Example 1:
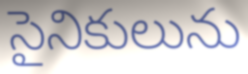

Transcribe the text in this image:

సైనికులును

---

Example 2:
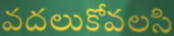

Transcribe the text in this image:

వదలుకోవలసి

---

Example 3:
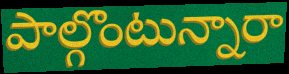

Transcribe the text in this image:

పాల్గొంటున్నారా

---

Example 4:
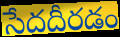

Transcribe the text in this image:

సేదదీరడం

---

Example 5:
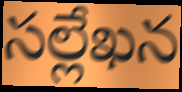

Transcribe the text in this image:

సల్లేఖన